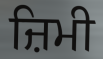
ਜ਼ਿਮੀ